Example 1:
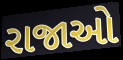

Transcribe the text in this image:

રાજાઓ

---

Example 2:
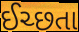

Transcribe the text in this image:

ઈચ્છતા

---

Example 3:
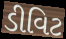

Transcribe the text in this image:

ડીવિટ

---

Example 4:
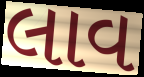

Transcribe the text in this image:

લાવ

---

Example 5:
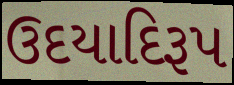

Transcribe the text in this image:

ઉદયાદિરૂપ